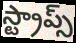
స్ట్రాప్స్